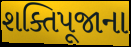
શક્તિપૂજાના